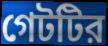
গেটটির